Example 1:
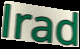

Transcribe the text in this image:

Irad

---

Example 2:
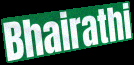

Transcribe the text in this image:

Bhairathi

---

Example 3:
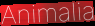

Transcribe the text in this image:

Animalia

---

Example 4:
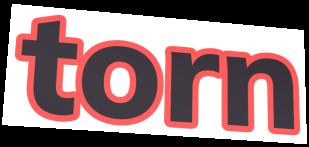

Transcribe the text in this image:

torn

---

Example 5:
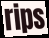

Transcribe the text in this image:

rips